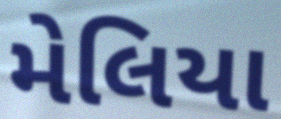
મેલિયા